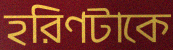
হরিণটাকে